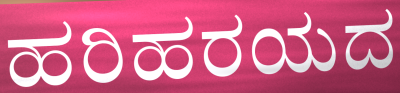
ಹರಿಹರಯದ